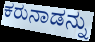
ಕರುನಾಡನ್ನು